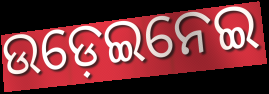
ଉଡ଼େଇନେଇ